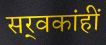
सर्वकांहीं